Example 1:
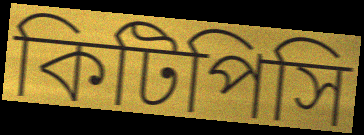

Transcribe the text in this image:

কিটিপিসি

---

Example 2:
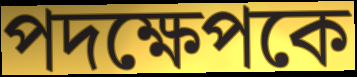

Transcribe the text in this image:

পদক্ষেপকে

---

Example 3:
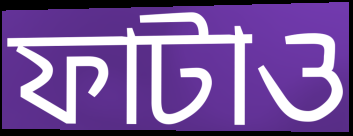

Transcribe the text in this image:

ফাটাও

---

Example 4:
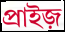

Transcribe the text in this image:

প্রাইজ়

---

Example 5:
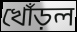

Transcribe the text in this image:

খোঁড়ল